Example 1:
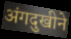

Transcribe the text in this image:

अंगदुखीने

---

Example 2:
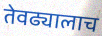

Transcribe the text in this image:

तेवढ्यालाच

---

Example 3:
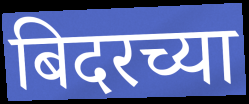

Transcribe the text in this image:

बिदरच्या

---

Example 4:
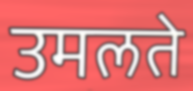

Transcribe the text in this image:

उमलते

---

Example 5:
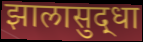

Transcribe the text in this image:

झालासुद्धा